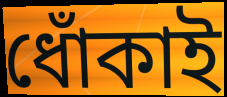
ধোঁকাই